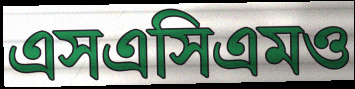
এসএসিএমও